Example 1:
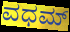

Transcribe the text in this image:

ವಧಮ್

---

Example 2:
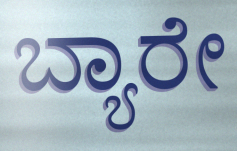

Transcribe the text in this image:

ಬ್ಯಾರೇ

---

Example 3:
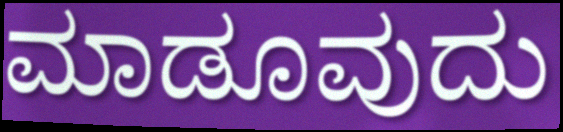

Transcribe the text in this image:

ಮಾಡೂವುದು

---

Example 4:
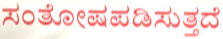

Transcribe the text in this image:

ಸಂತೋಷಪಡಿಸುತ್ತದೆ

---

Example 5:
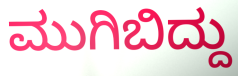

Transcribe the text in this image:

ಮುಗಿಬಿದ್ದು